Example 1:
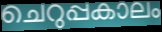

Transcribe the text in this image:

ചെറുപ്പകാലം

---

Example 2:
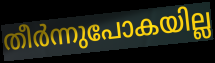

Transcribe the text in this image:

തീർന്നുപോകയില്ല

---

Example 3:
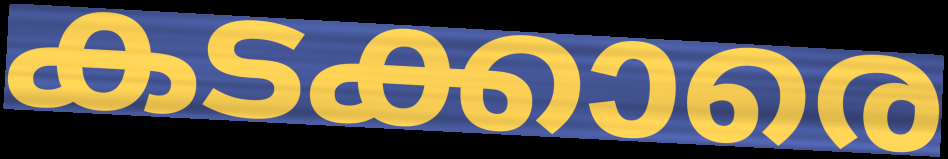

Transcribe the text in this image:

കടക്കാരെ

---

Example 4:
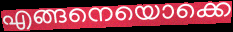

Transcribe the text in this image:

എങ്ങനെയൊക്കെ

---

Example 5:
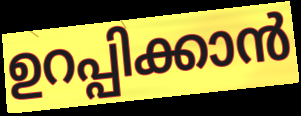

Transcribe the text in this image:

ഉറപ്പിക്കാൻ